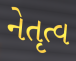
નેતૃત્વ